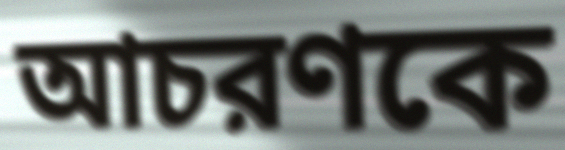
আচরণকে